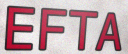
EFTA